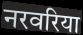
नरवरिया